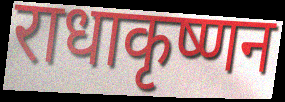
राधाकृष्णन